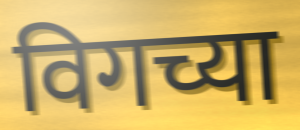
विगच्या